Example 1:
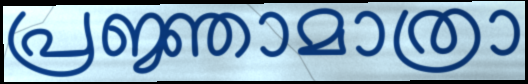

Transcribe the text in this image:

പ്രജ്ഞാമാത്രാ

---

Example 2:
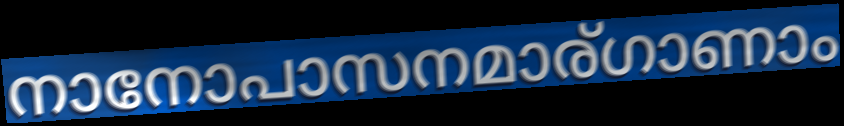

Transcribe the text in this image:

നാനോപാസനമാര്ഗാണാം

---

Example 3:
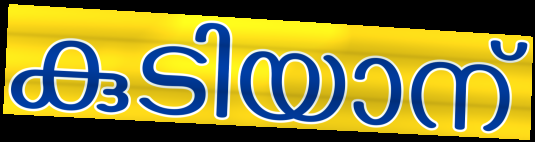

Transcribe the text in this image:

കുടിയാന്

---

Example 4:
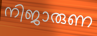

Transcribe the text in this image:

നിജാരുണ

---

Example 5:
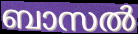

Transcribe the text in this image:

ബാസൽ